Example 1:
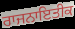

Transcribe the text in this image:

ਰਾਜਨਾਇਤੀਕ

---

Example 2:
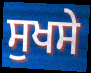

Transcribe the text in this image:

ਸੁਖਸੇ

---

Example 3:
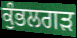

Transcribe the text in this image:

ਕੁੰਭਲਗੜ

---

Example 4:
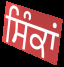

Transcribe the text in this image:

ਸਿੰਕਾਂ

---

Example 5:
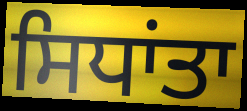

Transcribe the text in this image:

ਸਿਧਾਂਤਾ